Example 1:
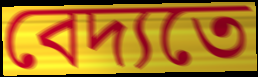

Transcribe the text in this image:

বেদ্যতে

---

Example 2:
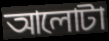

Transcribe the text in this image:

আলোটা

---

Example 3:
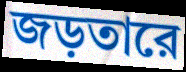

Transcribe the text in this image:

জড়তারে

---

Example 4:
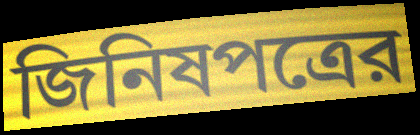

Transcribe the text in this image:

জিনিষপত্রের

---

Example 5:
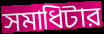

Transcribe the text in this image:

সমাধিটার